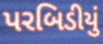
પરબિડીયું